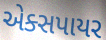
એક્સપાયર